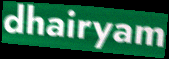
dhairyam